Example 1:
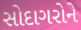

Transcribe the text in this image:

સોદાગરોને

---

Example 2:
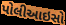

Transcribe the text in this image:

પોલીઆઇસો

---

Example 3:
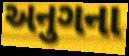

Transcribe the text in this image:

અનુગના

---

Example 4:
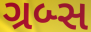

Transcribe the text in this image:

ગ્રબ્સ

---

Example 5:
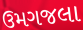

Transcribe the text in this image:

ઉમગજલા